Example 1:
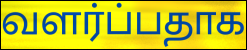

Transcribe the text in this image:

வளர்ப்பதாக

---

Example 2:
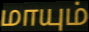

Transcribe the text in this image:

மாயும்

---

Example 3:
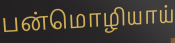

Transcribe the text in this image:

பன்மொழியாய்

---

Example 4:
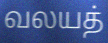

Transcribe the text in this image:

வலயத்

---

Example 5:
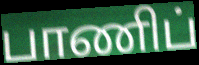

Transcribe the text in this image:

பாணிப்